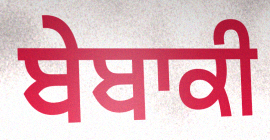
ਬੇਬਾਕੀ